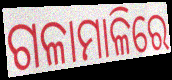
ଗଳାମାଳିରେ